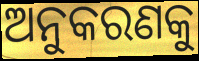
ଅନୁକରଣକୁ